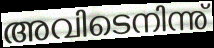
അവിടെനിന്നു്